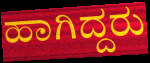
ಹಾಗಿದ್ದರು